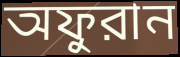
অফুরান